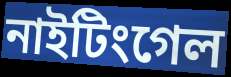
নাইটিংগেল